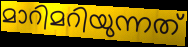
മാറിമറിയുന്നത്